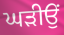
ਘੜੀਉਂ